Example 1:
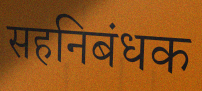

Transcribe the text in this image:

सहनिबंधक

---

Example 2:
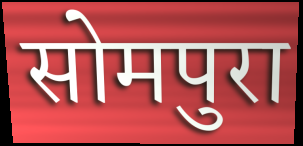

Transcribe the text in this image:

सोमपुरा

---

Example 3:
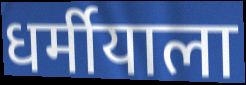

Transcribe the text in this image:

धर्मीयाला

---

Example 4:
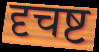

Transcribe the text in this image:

दृचष्ट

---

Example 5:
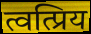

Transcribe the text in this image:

त्वत्प्रिय